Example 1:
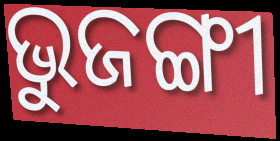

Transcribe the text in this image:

ଭୁଜଙ୍ଗୀ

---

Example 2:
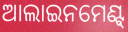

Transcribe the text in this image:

ଆଲାଇନମେଣ୍ଟ୍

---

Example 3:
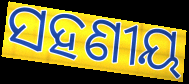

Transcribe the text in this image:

ସହଣୀୟ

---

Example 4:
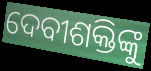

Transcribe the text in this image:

ଦେବୀଶକ୍ତିଙ୍କୁ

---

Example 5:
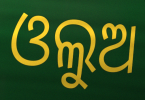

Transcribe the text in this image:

ଓଲୁଅ